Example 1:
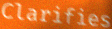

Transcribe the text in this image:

Clarifies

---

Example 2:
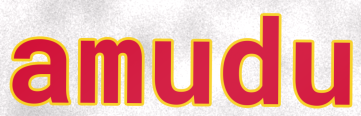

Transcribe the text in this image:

amudu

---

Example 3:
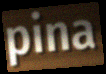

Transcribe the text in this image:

pina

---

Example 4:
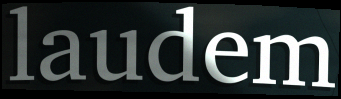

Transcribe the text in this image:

laudem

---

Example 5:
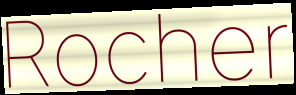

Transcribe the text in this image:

Rocher